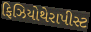
ફિઝિયોથેરાપીસ્ટ